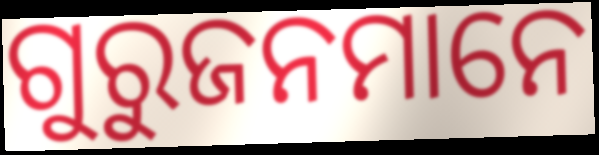
ଗୁରୁଜନମାନେ